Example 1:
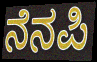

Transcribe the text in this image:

ನೆನಪಿ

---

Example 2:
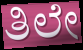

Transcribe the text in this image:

ತಿಲೇ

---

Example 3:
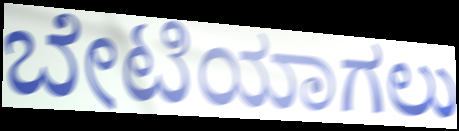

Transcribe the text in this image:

ಬೇಟಿಯಾಗಲು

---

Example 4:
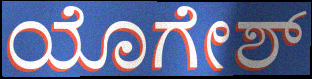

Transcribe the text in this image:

ಯೊಗೇಶ್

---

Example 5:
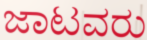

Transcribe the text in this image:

ಜಾಟವರು